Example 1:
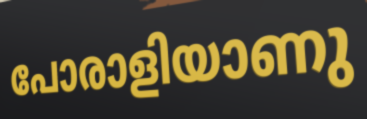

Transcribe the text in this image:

പോരാളിയാണു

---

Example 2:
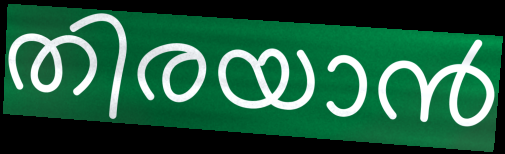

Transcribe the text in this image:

തിരയാൻ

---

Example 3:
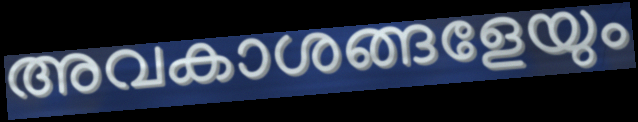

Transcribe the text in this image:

അവകാശങ്ങളേയും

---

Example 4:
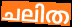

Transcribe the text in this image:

ചലിത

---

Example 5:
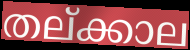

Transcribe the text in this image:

തല്ക്കാല